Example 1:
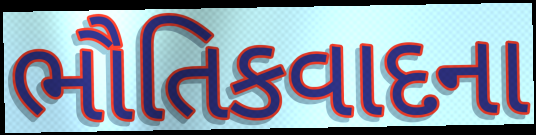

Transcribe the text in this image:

ભૌતિકવાદના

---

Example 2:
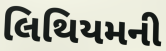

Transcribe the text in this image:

લિથિયમની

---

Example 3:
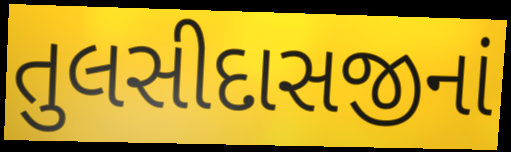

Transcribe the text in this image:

તુલસીદાસજીનાં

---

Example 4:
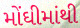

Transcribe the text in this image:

મોંઘીમાંથી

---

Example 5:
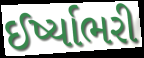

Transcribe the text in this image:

ઈર્ષ્યાભરી